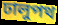
ঢালুপথ